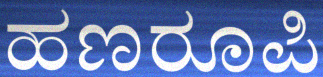
ಹಣರೂಪಿ